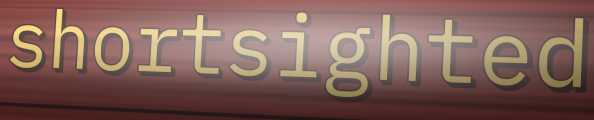
shortsighted